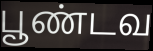
பூண்டவ